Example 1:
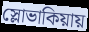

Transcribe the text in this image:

স্লোভাকিয়ায়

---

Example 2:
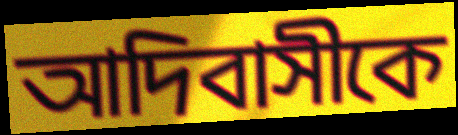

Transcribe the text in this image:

আদিবাসীকে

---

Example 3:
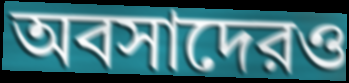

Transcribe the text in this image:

অবসাদেরও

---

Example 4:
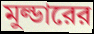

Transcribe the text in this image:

মুল্ডারের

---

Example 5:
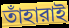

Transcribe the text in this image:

তাঁহারাই